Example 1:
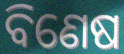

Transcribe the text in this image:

ବିଣେଷ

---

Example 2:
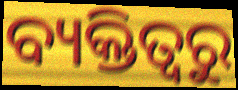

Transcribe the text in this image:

ବ୍ୟକ୍ତିତ୍ୱରୁ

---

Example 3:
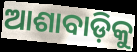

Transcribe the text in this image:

ଆଶାବାଡ଼ିକୁ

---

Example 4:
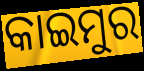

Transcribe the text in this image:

କାଇମୁର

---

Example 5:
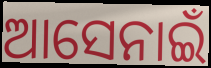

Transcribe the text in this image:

ଆସେନାଇଁ